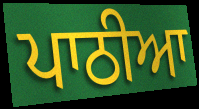
ਪਾਠੀਆ